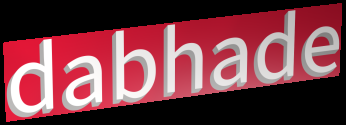
dabhade